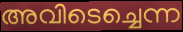
അവിടെച്ചെന്ന